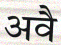
अवै